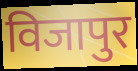
विजापुर